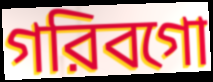
গরিবগো